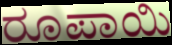
ರೂಪಾಯಿ